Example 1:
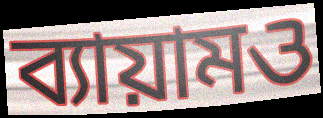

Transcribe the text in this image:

ব্যায়ামও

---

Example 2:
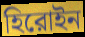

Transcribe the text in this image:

হিরোইন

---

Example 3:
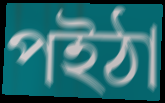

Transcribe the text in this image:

পইঠা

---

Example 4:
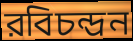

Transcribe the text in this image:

রবিচন্দ্রন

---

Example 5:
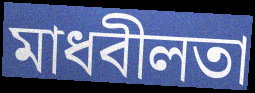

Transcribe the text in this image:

মাধবীলতা